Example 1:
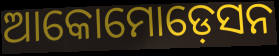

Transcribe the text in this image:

ଆକୋମୋଡ଼େସନ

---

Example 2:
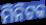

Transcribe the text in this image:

ମିନିଟକ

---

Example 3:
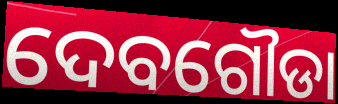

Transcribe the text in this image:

ଦେବଗୌଡା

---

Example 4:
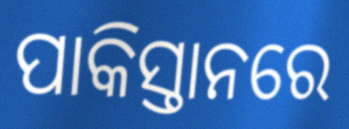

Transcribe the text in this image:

ପାକିସ୍ତାନରେ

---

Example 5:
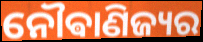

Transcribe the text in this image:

ନୌଵାଣିଜ୍ୟର